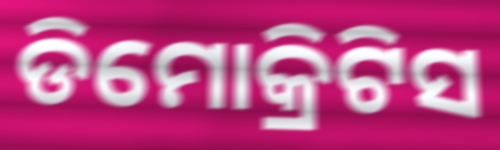
ଡିମୋକ୍ରିଟିସ